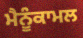
ਮੈਨੂੰਕਾਮਲ